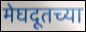
मेघदूतच्या